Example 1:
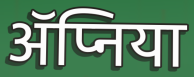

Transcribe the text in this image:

ॲप्निया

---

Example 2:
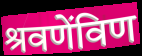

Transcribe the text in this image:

श्रवणेंविण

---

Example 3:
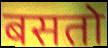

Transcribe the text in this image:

बसतो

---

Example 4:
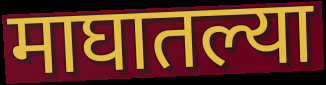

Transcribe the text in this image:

माघातल्या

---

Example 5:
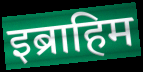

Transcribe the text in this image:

इब्राहिम